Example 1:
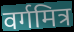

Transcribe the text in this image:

वर्गमित्र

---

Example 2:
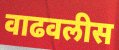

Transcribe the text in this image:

वाढवलीस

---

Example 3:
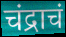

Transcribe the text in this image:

चंद्राचं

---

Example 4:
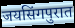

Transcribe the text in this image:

जयसिंगपुरात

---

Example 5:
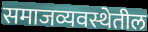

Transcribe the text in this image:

समाजव्यवस्थेतील